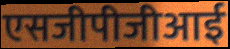
एसजीपीजीआई